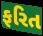
ફરિત